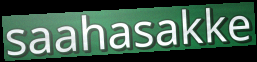
saahasakke